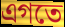
এগতে